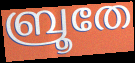
ബ്രൂതേ